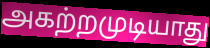
அகற்றமுடியாது